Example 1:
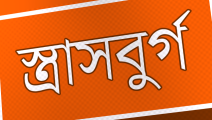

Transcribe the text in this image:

স্ত্রাসবুর্গ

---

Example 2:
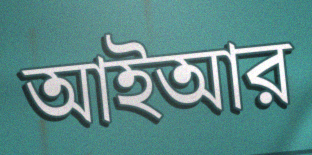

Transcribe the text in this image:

আইআর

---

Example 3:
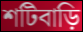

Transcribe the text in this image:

শটিবাড়ি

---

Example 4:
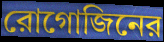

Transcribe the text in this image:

রোগোজিনের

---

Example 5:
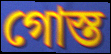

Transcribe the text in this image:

গোস্ত